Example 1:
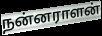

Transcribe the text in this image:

நன்னராளன்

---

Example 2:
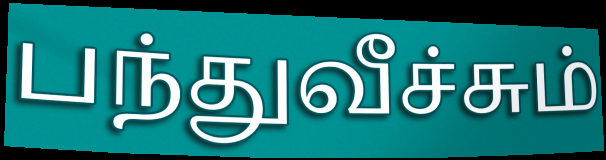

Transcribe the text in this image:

பந்துவீச்சும்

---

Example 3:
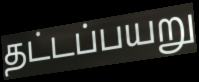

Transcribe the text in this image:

தட்டப்பயறு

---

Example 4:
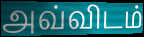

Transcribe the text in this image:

அவ்விடம்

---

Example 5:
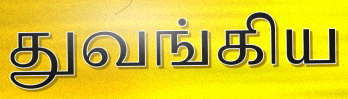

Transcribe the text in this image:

துவங்கிய